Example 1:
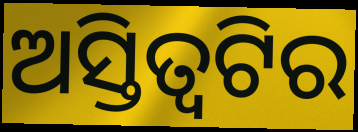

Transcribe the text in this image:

ଅସ୍ତିତ୍ୱଟିର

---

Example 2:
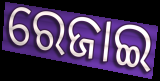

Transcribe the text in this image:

ରେଜାଇ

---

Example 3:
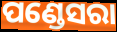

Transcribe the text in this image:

ପଣ୍ଡେସରା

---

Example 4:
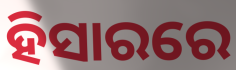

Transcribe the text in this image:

ହିସାରରେ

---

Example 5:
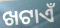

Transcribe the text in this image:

ଖଟାଏଁ